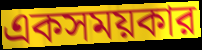
একসময়কার